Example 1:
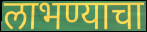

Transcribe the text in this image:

लाभण्याचा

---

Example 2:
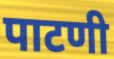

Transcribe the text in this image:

पाटणी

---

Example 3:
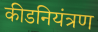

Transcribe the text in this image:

कीडनियंत्रण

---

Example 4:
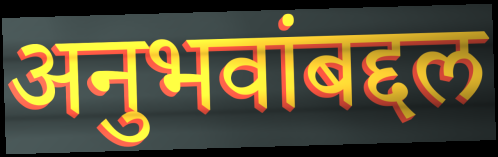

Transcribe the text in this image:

अनुभवांबद्दल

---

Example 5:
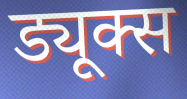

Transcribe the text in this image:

ड्यूक्स